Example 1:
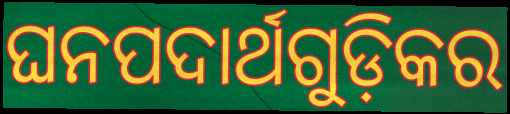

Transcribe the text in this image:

ଘନପଦାର୍ଥଗୁଡ଼ିକର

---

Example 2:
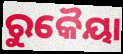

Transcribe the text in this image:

ରୁକୈୟା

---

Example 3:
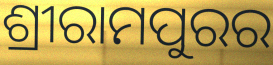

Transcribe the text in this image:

ଶ୍ରୀରାମପୁରର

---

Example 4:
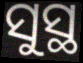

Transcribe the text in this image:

ସୁସ୍ଥ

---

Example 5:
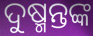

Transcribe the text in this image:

ଦୁଷ୍ମନ୍ତଙ୍କ